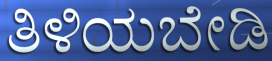
ತಿಳಿಯಬೇಡಿ